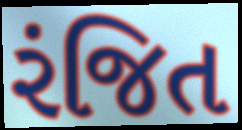
રંજિત